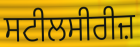
ਸਟੀਲਸੀਰੀਜ਼